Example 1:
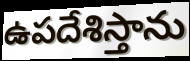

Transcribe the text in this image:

ఉపదేశిస్తాను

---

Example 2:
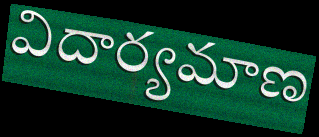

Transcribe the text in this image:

విదార్యమాణ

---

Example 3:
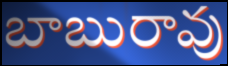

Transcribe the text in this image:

బాబురావు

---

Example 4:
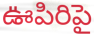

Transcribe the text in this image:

ఊపిరిపై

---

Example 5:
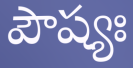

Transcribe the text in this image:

పౌష్యః